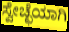
ಸ್ವೇಚ್ಛೆಯಾಗಿ